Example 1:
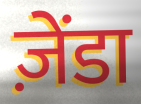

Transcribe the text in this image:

ज़ेंडा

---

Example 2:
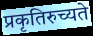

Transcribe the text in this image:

प्रकृतिरुच्यते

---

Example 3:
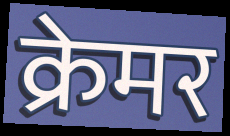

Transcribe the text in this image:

क्रेमर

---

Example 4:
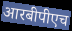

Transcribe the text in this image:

आरबीपीएच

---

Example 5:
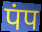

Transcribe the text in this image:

पंप